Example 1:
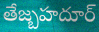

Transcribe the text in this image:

తేజ్బహదూర్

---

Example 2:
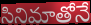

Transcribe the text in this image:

సినిమాతోనే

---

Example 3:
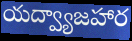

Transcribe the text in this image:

యద్వ్యాజహార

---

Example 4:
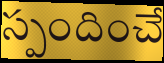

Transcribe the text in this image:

స్పందించే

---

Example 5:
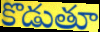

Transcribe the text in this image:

కొడుతూ